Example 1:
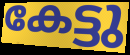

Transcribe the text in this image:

കേട്ടു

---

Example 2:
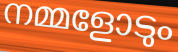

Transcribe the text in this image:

നമ്മളോടും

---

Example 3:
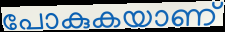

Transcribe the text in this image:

പോകുകയാണ്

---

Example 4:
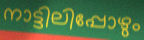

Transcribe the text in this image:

നാട്ടിലിപ്പോഴും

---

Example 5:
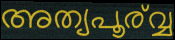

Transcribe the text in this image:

അത്യപൂര്വ്വ